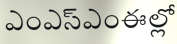
ఎంఎస్ఎంఈల్లో